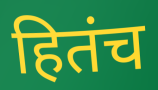
हितंच